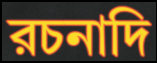
রচনাদি